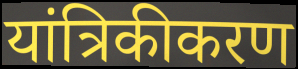
यांत्रिकीकरण